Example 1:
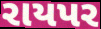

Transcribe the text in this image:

રાયપર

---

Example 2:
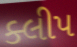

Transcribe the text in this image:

ક્લીપ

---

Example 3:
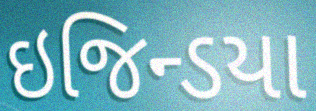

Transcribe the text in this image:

ઇજિન્ડયા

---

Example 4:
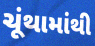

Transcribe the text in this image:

ચૂંથામાંથી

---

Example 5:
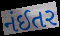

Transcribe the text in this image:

નંઈતર